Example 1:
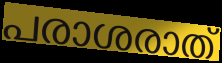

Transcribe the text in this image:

പരാശരാത്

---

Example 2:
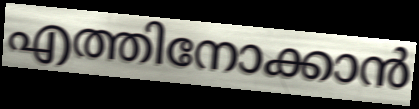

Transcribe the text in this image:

എത്തിനോക്കാൻ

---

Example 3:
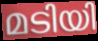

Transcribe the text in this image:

മടിയി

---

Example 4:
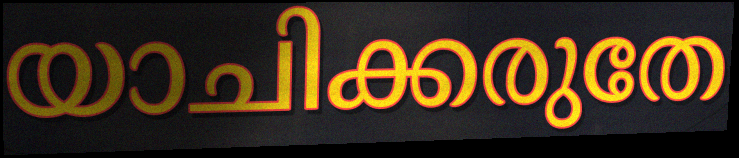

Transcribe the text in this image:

യാചിക്കരുതേ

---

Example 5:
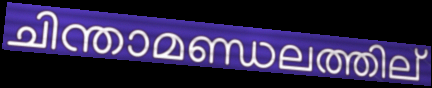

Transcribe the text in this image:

ചിന്താമണ്ഡലത്തില്